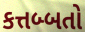
કત્તબ્બતો